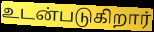
உடன்படுகிறார்